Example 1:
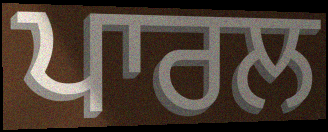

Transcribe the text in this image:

ਪਾਰਲ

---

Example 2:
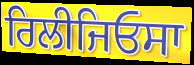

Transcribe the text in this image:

ਰਿਲੀਜਿਓਸਾ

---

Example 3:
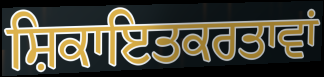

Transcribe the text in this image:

ਸ਼ਿਕਾਇਤਕਰਤਾਵਾਂ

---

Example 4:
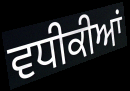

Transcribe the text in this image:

ਵਧੀਕੀਆਂ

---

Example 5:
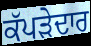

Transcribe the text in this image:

ਕੱਪੜੇਦਾਰ